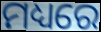
ମଧ୍ୟରେ